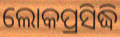
ଲୋକପ୍ରସିଦ୍ଧି